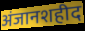
अंजानशहीद